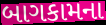
બાગકામના